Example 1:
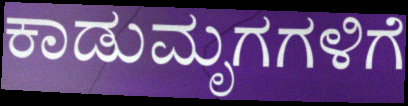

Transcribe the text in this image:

ಕಾಡುಮೃಗಗಳಿಗೆ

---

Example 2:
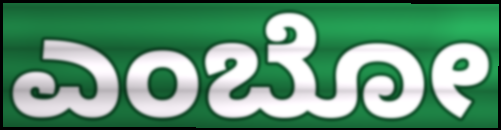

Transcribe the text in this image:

ಎಂಬೋ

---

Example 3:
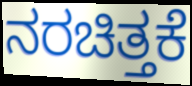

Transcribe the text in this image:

ನರಚಿತ್ತಕೆ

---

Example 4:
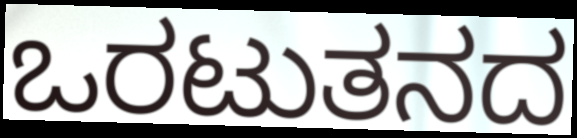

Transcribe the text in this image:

ಒರಟುತನದ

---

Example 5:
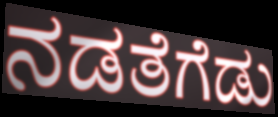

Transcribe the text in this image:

ನಡತೆಗೆಡು